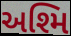
અશ્મિ